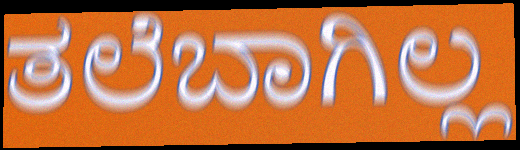
ತಲೆಬಾಗಿಲ್ಲ